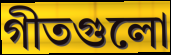
গীতগুলো